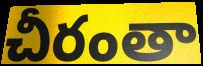
చీరంతా